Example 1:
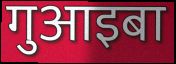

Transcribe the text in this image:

गुआइबा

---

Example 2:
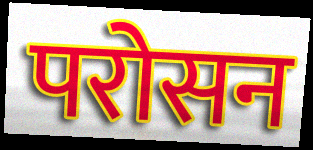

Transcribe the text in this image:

परोसन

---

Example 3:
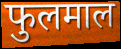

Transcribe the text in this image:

फुलमाल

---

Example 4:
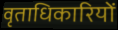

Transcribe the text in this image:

वृताधिकारियों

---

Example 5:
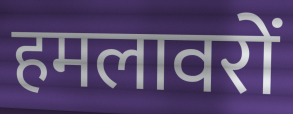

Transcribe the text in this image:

हमलावरों